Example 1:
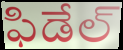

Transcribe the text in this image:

ఫిడేల్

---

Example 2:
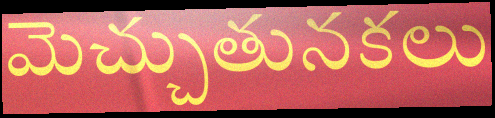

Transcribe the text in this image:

మెచ్చుతునకలు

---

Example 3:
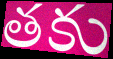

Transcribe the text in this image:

తకు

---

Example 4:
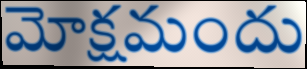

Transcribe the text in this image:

మోక్షమందు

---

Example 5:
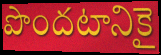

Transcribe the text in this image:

పొందటానికై